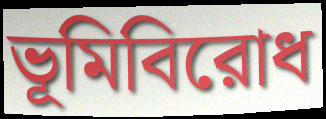
ভূমিবিরোধ